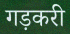
गड़करी